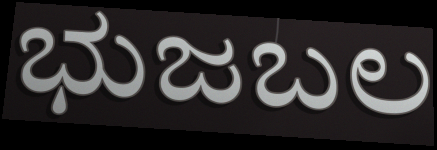
ಭುಜಬಲ